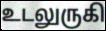
உடலுருகி